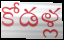
కోడళ్ల